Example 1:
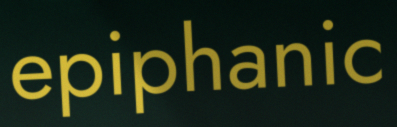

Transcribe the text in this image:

epiphanic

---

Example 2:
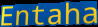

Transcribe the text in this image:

Entaha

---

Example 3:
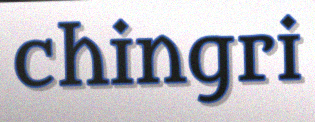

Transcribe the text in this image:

chingri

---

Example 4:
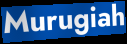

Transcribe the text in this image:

Murugiah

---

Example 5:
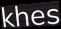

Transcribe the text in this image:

khes